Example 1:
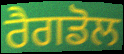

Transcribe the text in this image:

ਰੈਗਡੋਲ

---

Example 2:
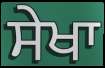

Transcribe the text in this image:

ਸੇਖਾ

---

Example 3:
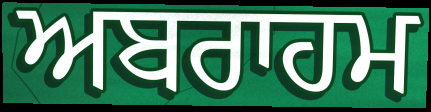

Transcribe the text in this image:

ਅਬਰਾਹਮ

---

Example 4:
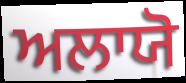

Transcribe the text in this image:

ਅਲਾਯੋ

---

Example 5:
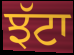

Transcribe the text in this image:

ਝੱਟਾ